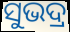
ସୁଭଦ୍ର